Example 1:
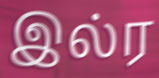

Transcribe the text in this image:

இல்ர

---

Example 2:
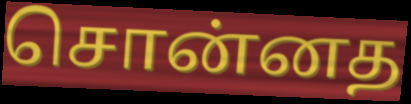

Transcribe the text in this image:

சொன்னத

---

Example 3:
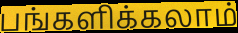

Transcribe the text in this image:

பங்களிக்கலாம்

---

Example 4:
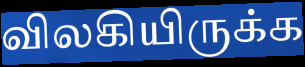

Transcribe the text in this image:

விலகியிருக்க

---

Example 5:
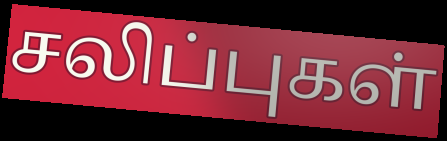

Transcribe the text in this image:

சலிப்புகள்